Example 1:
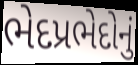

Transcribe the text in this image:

ભેદપ્રભેદોનું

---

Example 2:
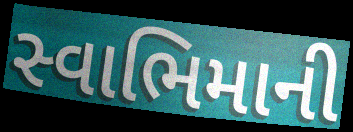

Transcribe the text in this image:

સ્વાભિમાની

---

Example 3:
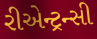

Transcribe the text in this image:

રીએન્ટ્રન્સી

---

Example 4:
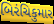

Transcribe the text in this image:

બિરંચિકુમાર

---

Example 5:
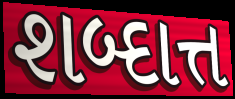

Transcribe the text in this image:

શબ્દાત્ત